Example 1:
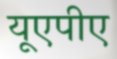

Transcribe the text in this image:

यूएपीए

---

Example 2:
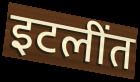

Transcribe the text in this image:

इटलींत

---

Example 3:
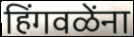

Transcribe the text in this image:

हिंगवळेंना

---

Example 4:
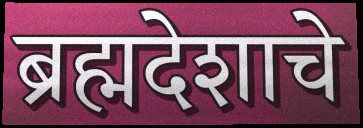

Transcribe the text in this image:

ब्रह्मदेशाचे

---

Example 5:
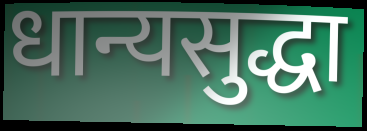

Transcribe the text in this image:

धान्यसुद्धा